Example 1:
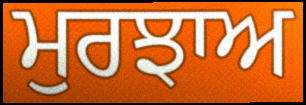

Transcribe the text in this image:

ਮੁਰਝਾਅ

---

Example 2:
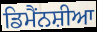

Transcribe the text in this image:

ਡਿਮੈਂਨਸ਼ੀਆ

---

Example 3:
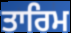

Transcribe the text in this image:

ਤਾਰਿਮ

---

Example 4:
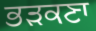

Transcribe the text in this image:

ਭੜਕਣਾ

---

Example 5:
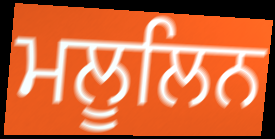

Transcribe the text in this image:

ਮਲੂਲਿਨ